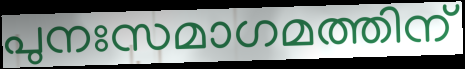
പുനഃസമാഗമത്തിന്